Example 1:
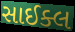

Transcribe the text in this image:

સાઈક્લ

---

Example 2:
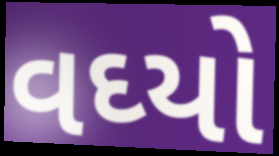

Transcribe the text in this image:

વઘ્યો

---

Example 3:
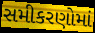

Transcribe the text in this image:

સમીકરણોમાં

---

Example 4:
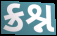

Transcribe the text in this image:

ક્રશ્ન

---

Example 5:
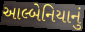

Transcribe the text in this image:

આલ્બેનિયાનું